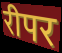
रीपर